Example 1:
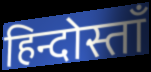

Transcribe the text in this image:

हिन्दोस्ताँ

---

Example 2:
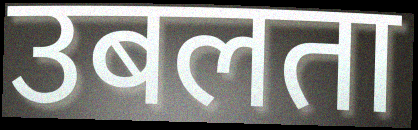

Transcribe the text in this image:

उबलता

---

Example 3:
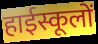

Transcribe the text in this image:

हाईस्कूलों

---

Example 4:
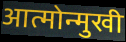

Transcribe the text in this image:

आत्मोन्मुखी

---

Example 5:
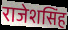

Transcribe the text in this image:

राजेशसिंह